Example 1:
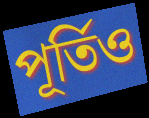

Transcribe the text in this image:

পূর্তিও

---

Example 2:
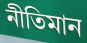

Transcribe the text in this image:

নীতিমান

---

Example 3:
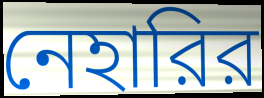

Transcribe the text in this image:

নেহারির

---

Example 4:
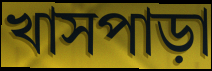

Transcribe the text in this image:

খাসপাড়া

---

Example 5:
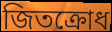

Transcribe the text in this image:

জিতক্রোধ